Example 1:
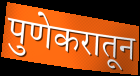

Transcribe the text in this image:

पुणेकरातून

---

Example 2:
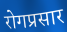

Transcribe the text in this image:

रोगप्रसार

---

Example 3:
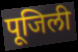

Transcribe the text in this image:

पूजिली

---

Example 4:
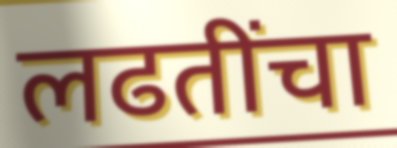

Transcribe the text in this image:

लढतींचा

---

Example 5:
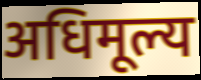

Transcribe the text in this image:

अधिमूल्य